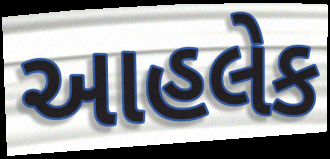
આહલેક